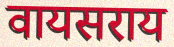
वायसराय